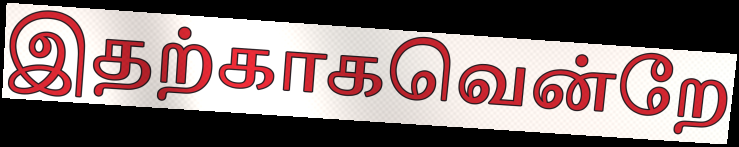
இதற்காகவென்றே